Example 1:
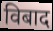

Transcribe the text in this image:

विबाद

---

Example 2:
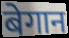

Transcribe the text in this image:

बेगान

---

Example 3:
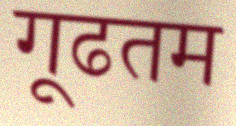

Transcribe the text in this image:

गूढतम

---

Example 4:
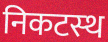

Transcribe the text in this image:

निकटस्‍थ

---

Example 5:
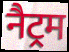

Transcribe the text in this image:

नैट्रम